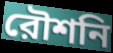
রৌশনি